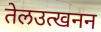
तेलउत्खनन